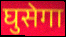
घुसेगा